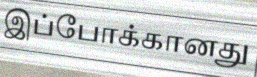
இப்போக்கானது